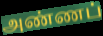
அண்ணப்